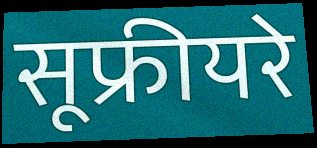
सूफ्रीयरे